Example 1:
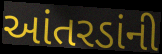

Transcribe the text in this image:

આંતરડાંની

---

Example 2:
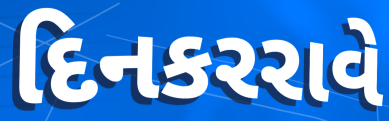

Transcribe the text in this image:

દિનકરરાવે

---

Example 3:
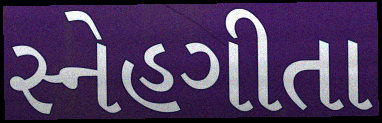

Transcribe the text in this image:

સ્નેહગીતા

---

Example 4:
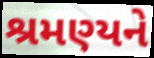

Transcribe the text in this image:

શ્રમણ્યને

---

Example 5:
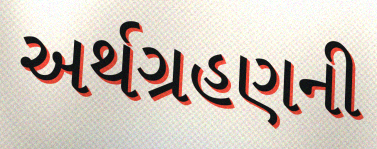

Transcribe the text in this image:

અર્થગ્રહણની